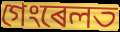
গেংৰেলত